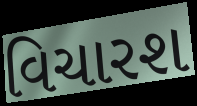
વિચારશ